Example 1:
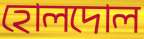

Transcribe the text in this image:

হোলদোল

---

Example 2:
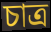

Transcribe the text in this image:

চাত্র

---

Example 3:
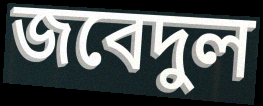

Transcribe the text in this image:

জবেদুল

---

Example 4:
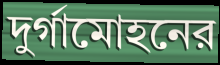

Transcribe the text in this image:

দুর্গামোহনের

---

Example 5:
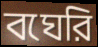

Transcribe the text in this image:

বঘেরি